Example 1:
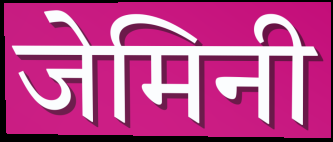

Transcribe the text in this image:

जेमिनी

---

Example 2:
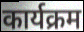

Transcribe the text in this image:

कार्यक्रम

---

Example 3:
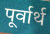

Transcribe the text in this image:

पूर्वार्थ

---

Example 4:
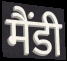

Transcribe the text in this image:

मैंडी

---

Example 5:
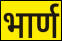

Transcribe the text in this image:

भार्ण